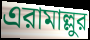
এরামাল্লুর